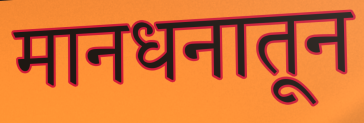
मानधनातून